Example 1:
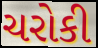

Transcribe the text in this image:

ચરોકી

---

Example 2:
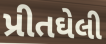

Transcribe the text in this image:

પ્રીતઘેલી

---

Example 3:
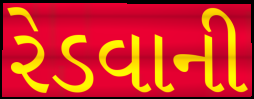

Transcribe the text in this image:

રેડવાની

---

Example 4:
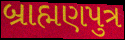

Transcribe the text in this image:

બ્રાહ્મણપુત્ર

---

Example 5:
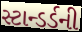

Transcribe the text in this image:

સ્ટાન્ડર્ડની